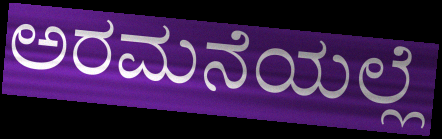
ಅರಮನೆಯಲ್ಲೆ